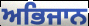
ਅਭਿਜਾਨ